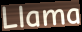
Llama